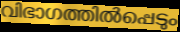
വിഭാഗത്തിൽപ്പെടും